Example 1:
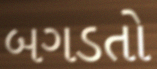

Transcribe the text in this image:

બગડતો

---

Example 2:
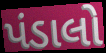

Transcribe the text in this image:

પંડાલો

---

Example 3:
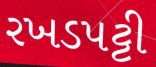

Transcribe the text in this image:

રખડપટ્ટી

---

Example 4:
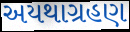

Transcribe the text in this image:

અયથાગ્રહણ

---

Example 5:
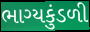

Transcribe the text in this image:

ભાગ્યકુંડળી